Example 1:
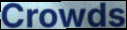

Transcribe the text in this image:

Crowds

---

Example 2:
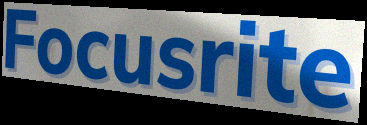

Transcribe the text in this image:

Focusrite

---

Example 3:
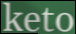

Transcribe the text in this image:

keto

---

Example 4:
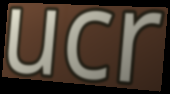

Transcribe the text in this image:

ucr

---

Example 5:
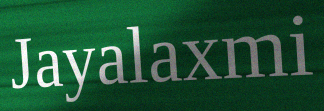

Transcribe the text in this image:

Jayalaxmi